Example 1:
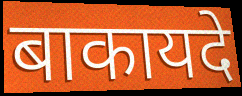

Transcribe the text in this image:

बाकायदे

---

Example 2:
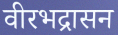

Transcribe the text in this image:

वीरभद्रासन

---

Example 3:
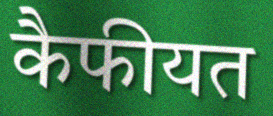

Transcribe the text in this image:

कैफीयत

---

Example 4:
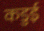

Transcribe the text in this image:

कडुई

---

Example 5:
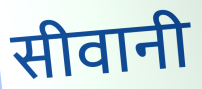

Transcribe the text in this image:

सीवानी